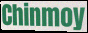
Chinmoy